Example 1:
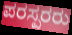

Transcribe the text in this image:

ಪರಸ್ಪರರು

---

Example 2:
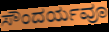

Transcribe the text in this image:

ಸೌಂದರ್ಯವೂ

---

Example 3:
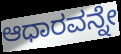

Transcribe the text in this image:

ಆಧಾರವನ್ನೇ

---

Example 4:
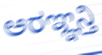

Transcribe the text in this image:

ಅರಞ್ಞನ್ತಿ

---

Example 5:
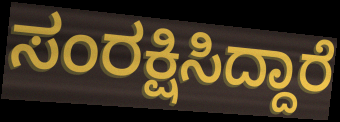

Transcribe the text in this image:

ಸಂರಕ್ಷಿಸಿದ್ದಾರೆ